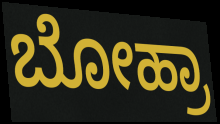
ಬೋಹ್ರಾ